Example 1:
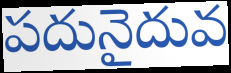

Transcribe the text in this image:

పదునైదువ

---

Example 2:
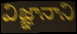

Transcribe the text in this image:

విజ్ఞానాని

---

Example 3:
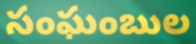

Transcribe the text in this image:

సంఘంబుల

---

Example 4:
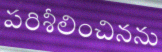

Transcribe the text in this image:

పరిశీలించినను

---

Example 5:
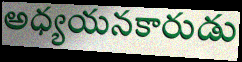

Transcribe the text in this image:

అధ్యయనకారుడు